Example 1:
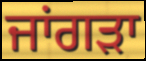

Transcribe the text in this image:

ਜਾਂਗੜਾ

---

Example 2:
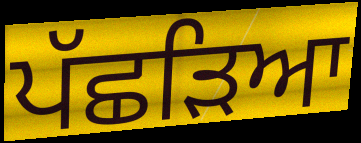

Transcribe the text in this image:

ਪੱਛੜਿਆ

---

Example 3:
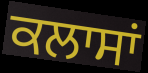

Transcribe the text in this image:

ਕਲਾਸਾਂ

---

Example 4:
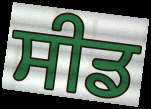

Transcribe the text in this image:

ਸੀਡ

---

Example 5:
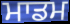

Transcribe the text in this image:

ਮਾਡਮ